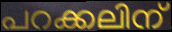
പറക്കലിന്